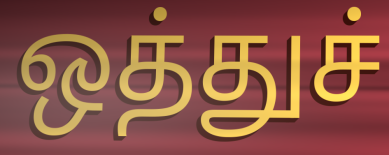
ஒத்துச்